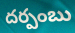
దర్పంబు